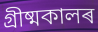
গ্ৰীষ্মকালৰ